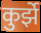
कुर्झे